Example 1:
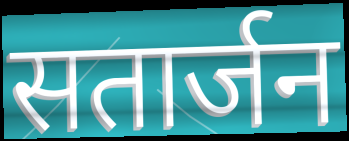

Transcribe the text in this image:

सतार्जन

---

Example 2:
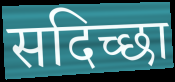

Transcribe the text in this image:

सदिच्छा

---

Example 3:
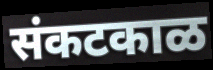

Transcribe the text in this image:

संकटकाळ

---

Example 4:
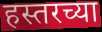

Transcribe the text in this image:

हस्तरच्या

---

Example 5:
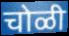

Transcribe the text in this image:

चोळी